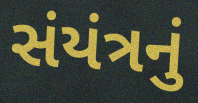
સંયંત્રનું